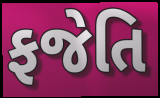
ફજેતિ